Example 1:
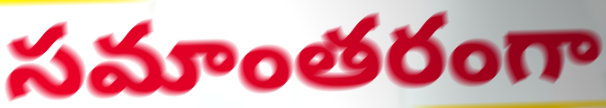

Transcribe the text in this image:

సమాంతరంగా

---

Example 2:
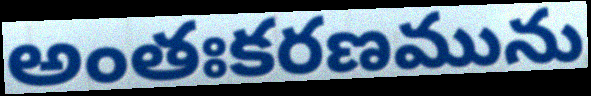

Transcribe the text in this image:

అంతఃకరణమును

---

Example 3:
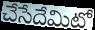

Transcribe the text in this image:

చేసేదేమిటో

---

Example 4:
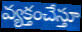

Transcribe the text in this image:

వ్యక్తంచేస్తూ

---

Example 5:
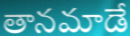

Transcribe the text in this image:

తానమాడే